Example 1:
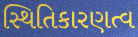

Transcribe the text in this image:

સ્થિતિકારણત્વ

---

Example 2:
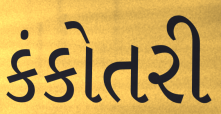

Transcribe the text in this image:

કંકોતરી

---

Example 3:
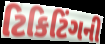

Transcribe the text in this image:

ટિકિટિંગની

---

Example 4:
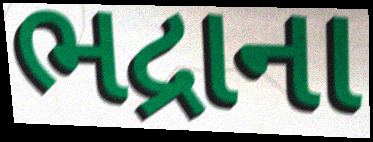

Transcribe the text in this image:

ભદ્રાના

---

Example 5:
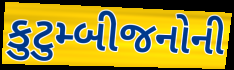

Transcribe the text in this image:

કુટુમ્બીજનોની